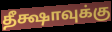
தீக்ஷாவுக்கு